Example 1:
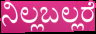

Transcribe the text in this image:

ನಿಲ್ಲಬಲ್ಲರೆ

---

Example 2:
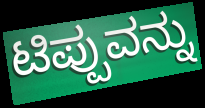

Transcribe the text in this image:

ಟಿಪ್ಪುವನ್ನು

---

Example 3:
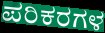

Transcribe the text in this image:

ಪರಿಕರಗಳ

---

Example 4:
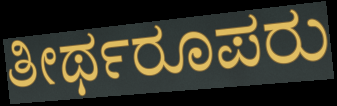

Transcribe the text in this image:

ತೀರ್ಥರೂಪರು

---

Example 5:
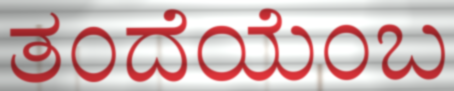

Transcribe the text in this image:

ತಂದೆಯೆಂಬ